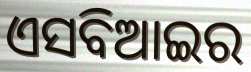
ଏସବିଆଇର